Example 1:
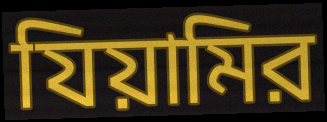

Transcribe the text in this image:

যিয়ামির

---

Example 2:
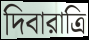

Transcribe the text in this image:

দিবারাত্রি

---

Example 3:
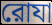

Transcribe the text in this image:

রোযা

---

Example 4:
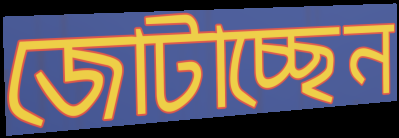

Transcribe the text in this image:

জোটাচ্ছেন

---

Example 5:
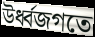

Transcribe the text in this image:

উর্ধ্বজগতে